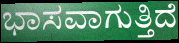
ಭಾಸವಾಗುತ್ತಿದೆ